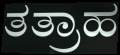
ತತ್ರಾಹ